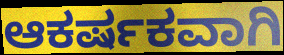
ಆಕರ್ಷಕವಾಗಿ